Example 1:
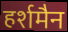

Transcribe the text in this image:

हर्शमैन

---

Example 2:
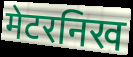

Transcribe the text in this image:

मेटरनिख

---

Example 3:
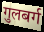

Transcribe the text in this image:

गुलबर्ग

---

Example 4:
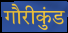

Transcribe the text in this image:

गौरीकुंड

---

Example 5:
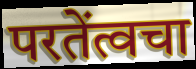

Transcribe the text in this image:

परतेंत्वचा